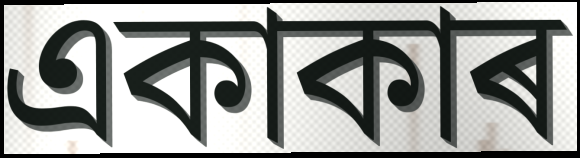
একাকাৰ